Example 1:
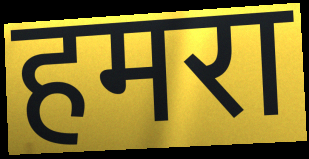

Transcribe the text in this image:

हमरा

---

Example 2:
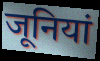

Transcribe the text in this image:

जूनियां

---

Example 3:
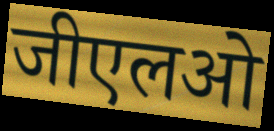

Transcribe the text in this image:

जीएलओ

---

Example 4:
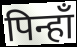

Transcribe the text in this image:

पिन्हाँ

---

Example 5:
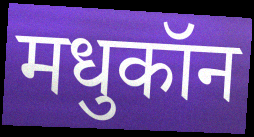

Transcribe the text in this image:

मधुकॉन